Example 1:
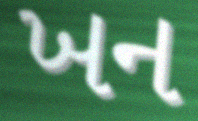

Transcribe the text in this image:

ખન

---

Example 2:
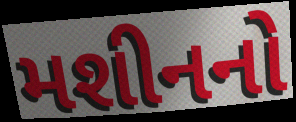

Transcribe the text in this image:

મશીનનો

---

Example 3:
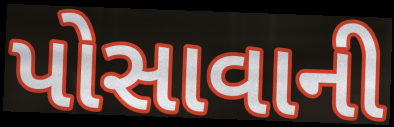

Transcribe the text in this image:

પોસાવાની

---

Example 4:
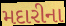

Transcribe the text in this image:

મદારીના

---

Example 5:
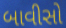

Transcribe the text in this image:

બાવીસો